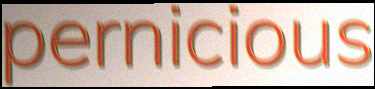
pernicious